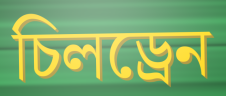
চিলড্ৰেন